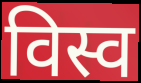
विस्व